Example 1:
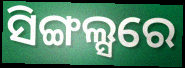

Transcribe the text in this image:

ସିଙ୍ଗଲ୍ସରେ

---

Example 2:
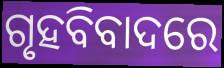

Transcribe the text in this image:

ଗୃହବିବାଦରେ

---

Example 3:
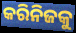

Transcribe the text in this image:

କରିନିଜକୁ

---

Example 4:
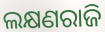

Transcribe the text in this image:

ଲକ୍ଷଣରାଜି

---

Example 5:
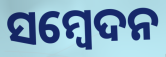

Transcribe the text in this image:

ସମ୍ଵେଦନ